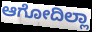
ಆಗೋದಿಲ್ಲಾ